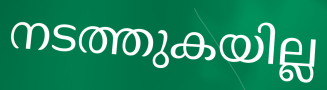
നടത്തുകയില്ല